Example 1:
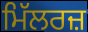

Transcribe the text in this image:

ਮਿੱਲਰਜ਼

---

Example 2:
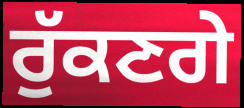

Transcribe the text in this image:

ਰੁੱਕਣਗੇ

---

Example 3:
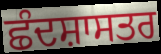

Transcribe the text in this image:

ਛੰਦਸ਼ਾਸਤਰ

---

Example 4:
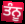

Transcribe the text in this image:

ਤੰਨੂ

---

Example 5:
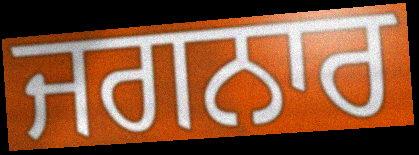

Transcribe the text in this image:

ਜਗਨਾਰ